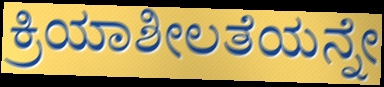
ಕ್ರಿಯಾಶೀಲತೆಯನ್ನೇ